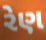
રેણ